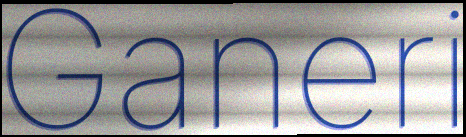
Ganeri